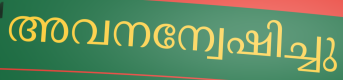
അവനന്വേഷിച്ചു